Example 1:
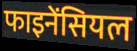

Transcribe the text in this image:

फाइनेंसियल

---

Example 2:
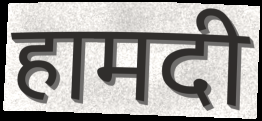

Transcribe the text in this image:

हामदी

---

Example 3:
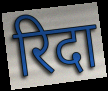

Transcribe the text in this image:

रिदा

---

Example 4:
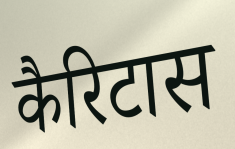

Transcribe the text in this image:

कैरिटास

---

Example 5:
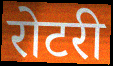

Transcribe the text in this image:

रोटरी